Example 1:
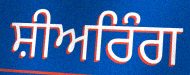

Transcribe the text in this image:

ਸ਼ੀਅਰਿੰਗ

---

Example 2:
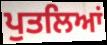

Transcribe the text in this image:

ਪੁਤਲਿਆਂ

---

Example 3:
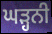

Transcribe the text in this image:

ਘੜ੍ਹਨੀ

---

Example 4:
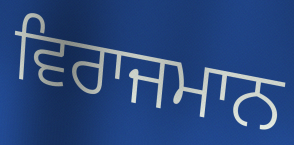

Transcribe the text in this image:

ਵਿਰਾਜਮਾਨ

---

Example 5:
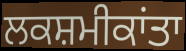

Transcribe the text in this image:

ਲਕਸ਼ਮੀਕਾਂਤਾ